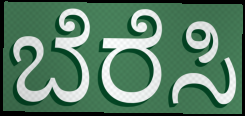
ಬೆರೆಸಿ